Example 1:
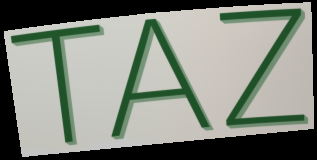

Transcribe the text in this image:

TAZ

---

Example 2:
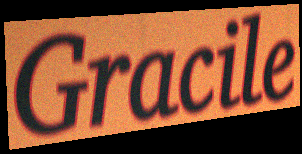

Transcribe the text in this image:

Gracile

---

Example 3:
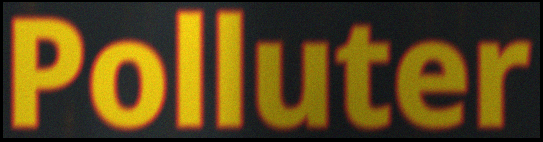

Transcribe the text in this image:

Polluter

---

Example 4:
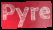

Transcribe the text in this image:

Pyre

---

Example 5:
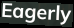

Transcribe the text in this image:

Eagerly